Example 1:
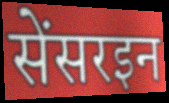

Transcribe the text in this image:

सेंसरइन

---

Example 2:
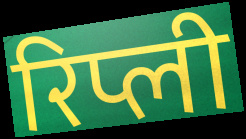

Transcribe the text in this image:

रिप्ली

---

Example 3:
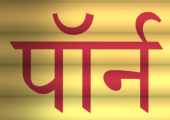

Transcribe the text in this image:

पॉर्न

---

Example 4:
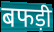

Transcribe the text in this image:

बफड़ी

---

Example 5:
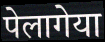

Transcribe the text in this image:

पेलागेया